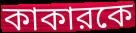
কাকারকে